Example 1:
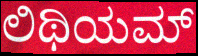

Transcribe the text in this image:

ಲಿಥಿಯಮ್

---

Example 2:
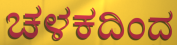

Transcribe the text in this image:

ಚಳಕದಿಂದ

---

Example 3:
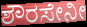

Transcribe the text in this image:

ಶೌರಸೇನೀ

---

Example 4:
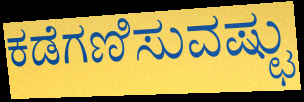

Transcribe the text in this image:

ಕಡೆಗಣಿಸುವಷ್ಟು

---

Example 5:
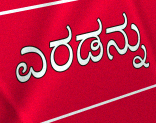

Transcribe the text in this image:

ಎರಡನ್ನು